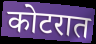
कोटरात